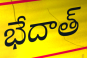
భేదాత్